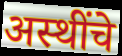
अस्थींचे